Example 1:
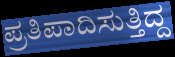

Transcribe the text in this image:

ಪ್ರತಿಪಾದಿಸುತ್ತಿದ್ದ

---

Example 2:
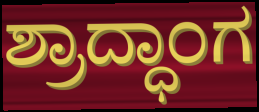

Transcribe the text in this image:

ಶ್ರಾದ್ಧಾಂಗ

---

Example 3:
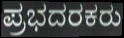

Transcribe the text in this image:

ಪ್ರಭದರಕರು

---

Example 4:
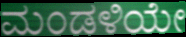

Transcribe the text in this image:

ಮಂಡಳಿಯೇ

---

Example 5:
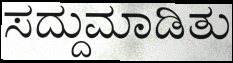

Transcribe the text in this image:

ಸದ್ದುಮಾಡಿತು